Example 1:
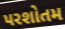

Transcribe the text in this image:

પરશોતમ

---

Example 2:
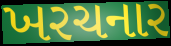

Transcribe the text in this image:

ખરચનાર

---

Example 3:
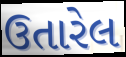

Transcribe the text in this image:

ઉતારેલ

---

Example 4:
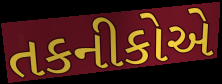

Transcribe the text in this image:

તકનીકોએ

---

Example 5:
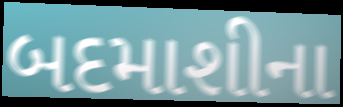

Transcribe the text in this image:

બદમાશીના